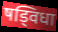
षड्विधा